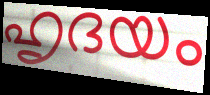
ഹൃദയം